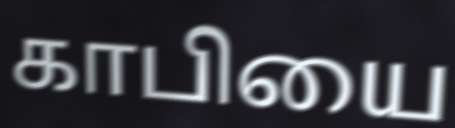
காபியை